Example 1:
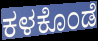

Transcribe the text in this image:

ಕಳಕೊಂಡೆ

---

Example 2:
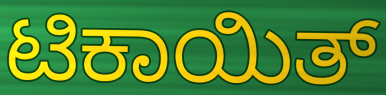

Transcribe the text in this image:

ಟಿಕಾಯಿತ್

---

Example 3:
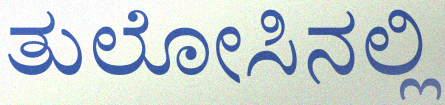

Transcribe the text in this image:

ತುಲೋಸಿನಲ್ಲಿ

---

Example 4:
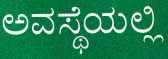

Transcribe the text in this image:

ಅವಸ್ಥೆಯಲ್ಲಿ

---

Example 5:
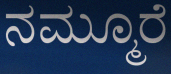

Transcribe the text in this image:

ನಮ್ಮೂರೆ